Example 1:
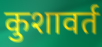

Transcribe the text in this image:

कुशावर्त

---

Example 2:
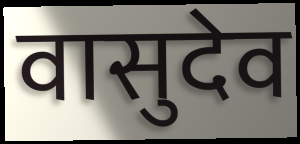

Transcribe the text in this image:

वासुदेव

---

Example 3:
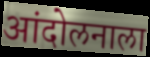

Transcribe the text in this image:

आंदोलनाला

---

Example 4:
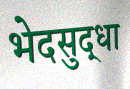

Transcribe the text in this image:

भेदसुद्धा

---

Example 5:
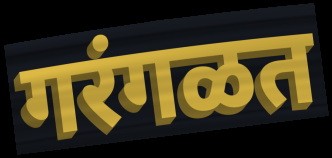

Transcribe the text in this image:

गरंगळत